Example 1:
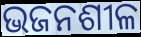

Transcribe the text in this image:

ଭଜନଶୀଳ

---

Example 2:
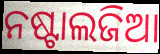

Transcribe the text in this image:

ନଷ୍ଟାଲଜିଆ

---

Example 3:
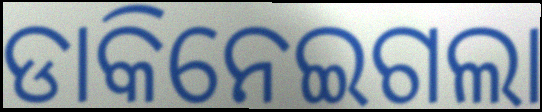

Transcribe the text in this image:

ଡାକିନେଇଗଲା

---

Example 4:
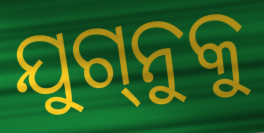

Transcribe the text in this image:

ଯୁଗ୍‌ନୁକୁ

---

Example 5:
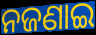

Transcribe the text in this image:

ନଜଣାଇ